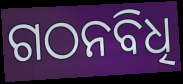
ଗଠନବିଧି